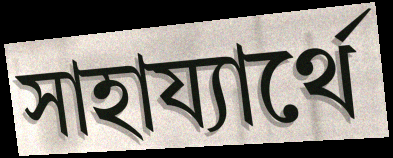
সাহায্যার্থে